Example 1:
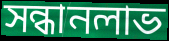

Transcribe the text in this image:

সন্ধানলাভ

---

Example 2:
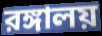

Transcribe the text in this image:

রঙ্গালয়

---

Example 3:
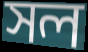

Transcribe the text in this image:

সল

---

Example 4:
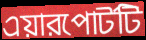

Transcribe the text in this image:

এয়ারপোর্টটি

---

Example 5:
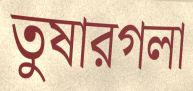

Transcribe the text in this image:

তুষারগলা